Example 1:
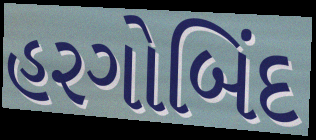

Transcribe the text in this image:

હરગોબિંદ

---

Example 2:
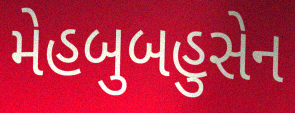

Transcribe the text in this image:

મેહબુબહુસેન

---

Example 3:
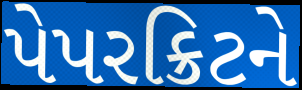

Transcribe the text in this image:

પેપરક્રિટને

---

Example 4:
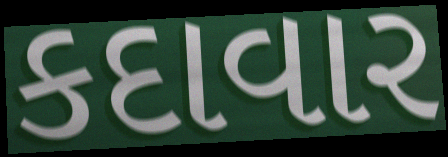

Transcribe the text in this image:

કદાવાર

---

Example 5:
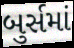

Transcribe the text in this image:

બુર્સમાં